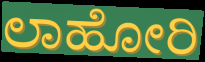
ಲಾಹೋರಿ